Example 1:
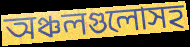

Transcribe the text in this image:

অঞ্চলগুলোসহ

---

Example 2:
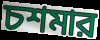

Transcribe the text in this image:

চশমার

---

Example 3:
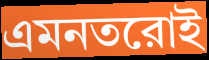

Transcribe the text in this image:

এমনতরোই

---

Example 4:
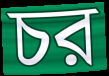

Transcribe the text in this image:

চর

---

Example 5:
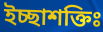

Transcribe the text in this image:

ইচ্ছাশক্তিঃ